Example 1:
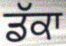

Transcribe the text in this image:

ਡੱਕਾ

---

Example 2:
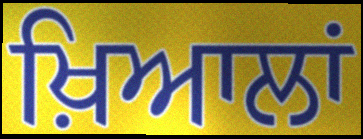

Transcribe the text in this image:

ਖ਼ਿਆਲਾਂ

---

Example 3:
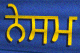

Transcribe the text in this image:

ਨੇਸਮ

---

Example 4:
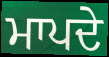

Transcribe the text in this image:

ਮਾਪਦੇ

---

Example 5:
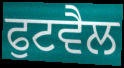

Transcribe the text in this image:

ਫੁਟਵੈਲ